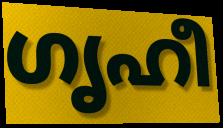
ഗൃഹീ